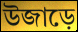
উজাড়ে